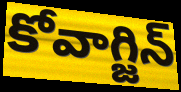
కోవాగ్జిన్